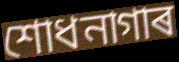
শোধনাগাৰ